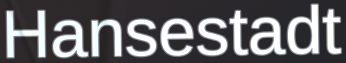
Hansestadt